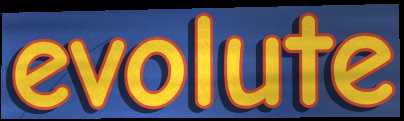
evolute